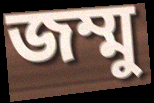
জম্মু